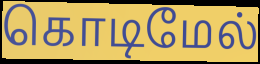
கொடிமேல்